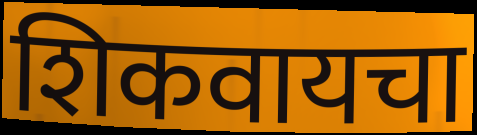
शिकवायचा